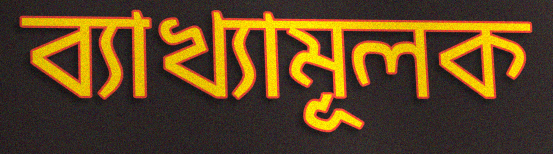
ব্যাখ্যামূলক